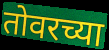
तोवरच्या